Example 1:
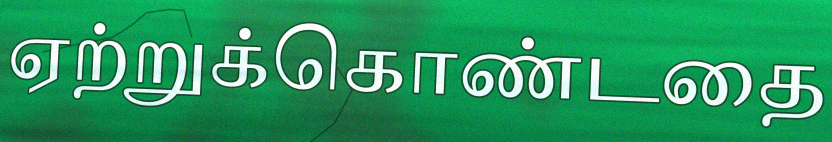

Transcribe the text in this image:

ஏற்றுக்கொண்டதை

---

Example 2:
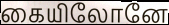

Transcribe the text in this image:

கையிலோனே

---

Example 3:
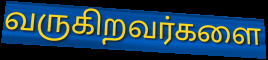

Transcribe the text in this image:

வருகிறவர்களை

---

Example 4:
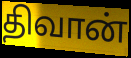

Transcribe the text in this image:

திவான்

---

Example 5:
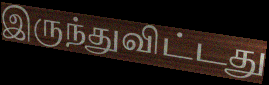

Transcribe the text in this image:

இருந்துவிட்டது